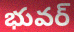
భువర్